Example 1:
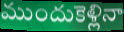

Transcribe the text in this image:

ముందుకెళ్లినా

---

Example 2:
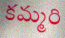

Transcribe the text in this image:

కమ్మరి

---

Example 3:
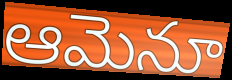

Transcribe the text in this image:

ఆమెనూ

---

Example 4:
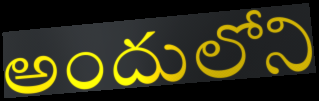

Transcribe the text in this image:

అందులోని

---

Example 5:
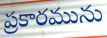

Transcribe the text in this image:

ప్రకారమును